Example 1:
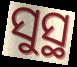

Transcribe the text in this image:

ସୁସ୍ଥ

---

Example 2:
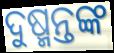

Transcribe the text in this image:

ଦୁଷ୍ମନ୍ତଙ୍କ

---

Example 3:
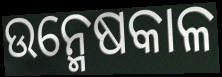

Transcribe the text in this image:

ଉନ୍ମେଷକାଳ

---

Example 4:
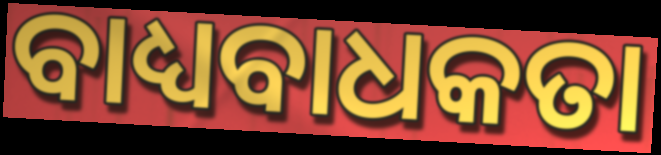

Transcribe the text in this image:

ବାଧ୍ୟବାଧକତା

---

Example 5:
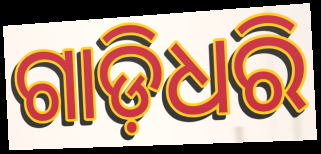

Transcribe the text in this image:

ଗାଡ଼ିଧରି